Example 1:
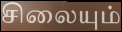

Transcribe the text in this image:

சிலையும்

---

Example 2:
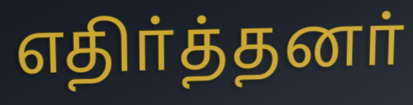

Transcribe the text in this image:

எதிர்த்தனர்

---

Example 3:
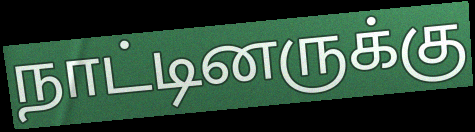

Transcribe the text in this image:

நாட்டினருக்கு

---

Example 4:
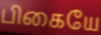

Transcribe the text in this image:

பிகையே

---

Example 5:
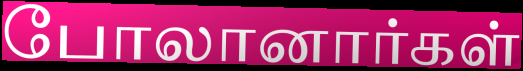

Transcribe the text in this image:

போலானார்கள்